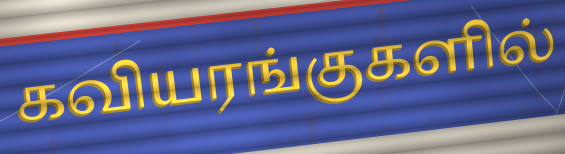
கவியரங்குகளில்